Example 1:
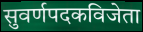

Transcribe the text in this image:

सुवर्णपदकविजेता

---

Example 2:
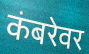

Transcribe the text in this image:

कंबरेवर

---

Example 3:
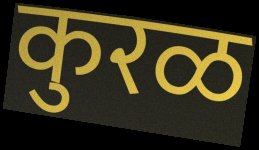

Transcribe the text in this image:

कुरळ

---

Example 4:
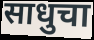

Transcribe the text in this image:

साधुचा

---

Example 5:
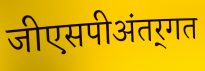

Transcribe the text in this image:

जीएसपीअंतर्गत